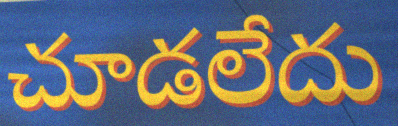
చూడలేదు